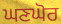
ਘਣਘੋਰ